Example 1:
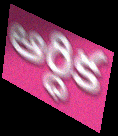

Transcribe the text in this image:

ఆర్ధిక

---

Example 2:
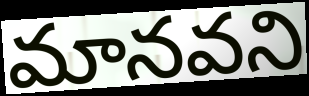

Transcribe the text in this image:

మానవని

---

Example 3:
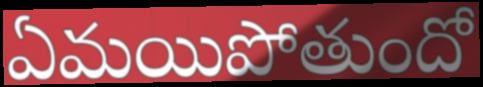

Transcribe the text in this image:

ఏమయిపోతుందో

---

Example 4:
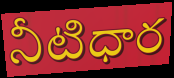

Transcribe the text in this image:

నీటిధార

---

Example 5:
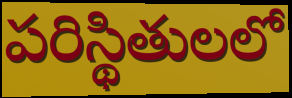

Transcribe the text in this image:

పరిస్థితులలో